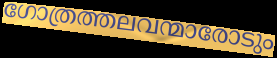
ഗോത്രത്തലവന്മാരോടും